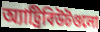
অ্যাট্রিবিউটগুলো